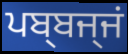
ਪਬ੍ਬਜ੍ਜਂ